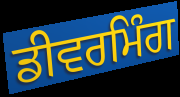
ਡੀਵਰਮਿੰਗ